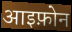
आइफ़ोन